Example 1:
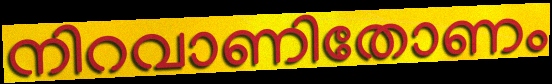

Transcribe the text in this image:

നിറവാണിതോണം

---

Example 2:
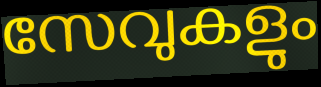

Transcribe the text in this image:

സേവുകളും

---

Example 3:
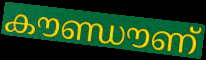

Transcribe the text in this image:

കൗണ്ഡൗണ്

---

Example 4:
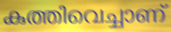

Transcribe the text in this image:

കുത്തിവെച്ചാണ്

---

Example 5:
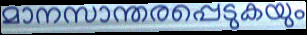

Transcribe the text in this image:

മാനസാന്തരപ്പെടുകയും